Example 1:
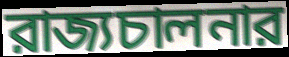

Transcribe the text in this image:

রাজ্যচালনার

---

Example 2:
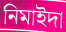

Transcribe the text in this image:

নিমাইদা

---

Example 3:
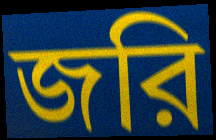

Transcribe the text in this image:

জরি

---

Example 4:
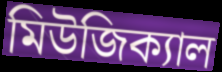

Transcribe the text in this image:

মিউজিক্যাল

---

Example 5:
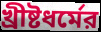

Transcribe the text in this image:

খ্রীষ্টধর্মের